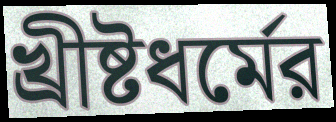
খ্রীষ্টধর্মের